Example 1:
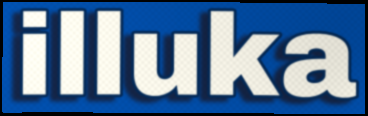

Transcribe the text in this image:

illuka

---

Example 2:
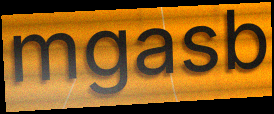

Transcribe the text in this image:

mgasb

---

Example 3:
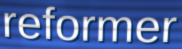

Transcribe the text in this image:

reformer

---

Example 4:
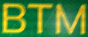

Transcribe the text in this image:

BTM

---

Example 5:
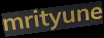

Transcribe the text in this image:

mrityune